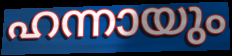
ഹന്നായും